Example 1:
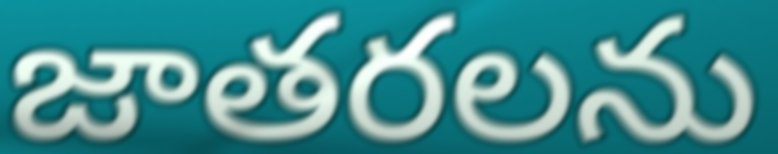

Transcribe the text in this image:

జాతరలను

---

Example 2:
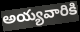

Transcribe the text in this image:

అయ్యవారికి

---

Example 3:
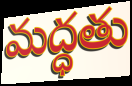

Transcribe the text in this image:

మద్ధతు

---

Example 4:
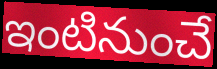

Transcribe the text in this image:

ఇంటినుంచే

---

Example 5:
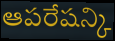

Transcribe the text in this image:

ఆపరేషన్కి